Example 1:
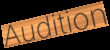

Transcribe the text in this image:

Audition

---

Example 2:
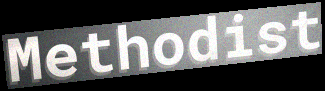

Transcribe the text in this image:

Methodist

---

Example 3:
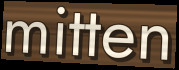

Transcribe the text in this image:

mitten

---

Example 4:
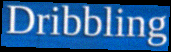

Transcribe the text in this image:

Dribbling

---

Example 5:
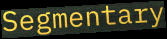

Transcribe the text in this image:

Segmentary